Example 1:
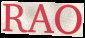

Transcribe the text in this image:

RAO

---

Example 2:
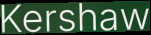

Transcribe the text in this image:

Kershaw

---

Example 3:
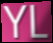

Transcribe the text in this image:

YL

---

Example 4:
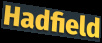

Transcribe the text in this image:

Hadfield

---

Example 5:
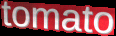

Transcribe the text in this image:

tomato